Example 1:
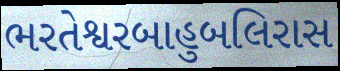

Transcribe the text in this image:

ભરતેશ્વરબાહુબલિરાસ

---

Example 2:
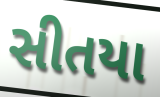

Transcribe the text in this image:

સીતયા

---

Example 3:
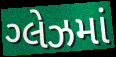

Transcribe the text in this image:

ગ્લેઝમાં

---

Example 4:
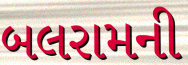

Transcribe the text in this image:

બલરામની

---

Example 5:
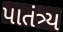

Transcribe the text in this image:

પાતંત્ર્ય